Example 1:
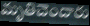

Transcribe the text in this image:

మృతిచెందారు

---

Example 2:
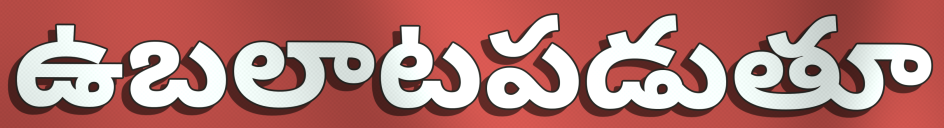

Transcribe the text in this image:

ఉబలాటపడుతూ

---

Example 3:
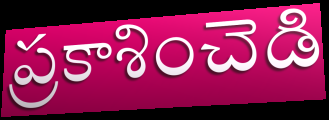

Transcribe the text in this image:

ప్రకాశించెడి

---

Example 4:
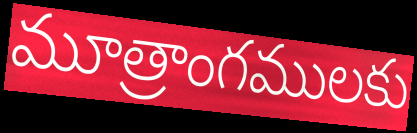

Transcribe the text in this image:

మూత్రాంగములకు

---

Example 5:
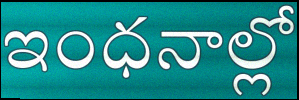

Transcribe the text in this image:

ఇంధనాల్లో